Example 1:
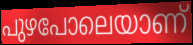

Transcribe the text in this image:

പുഴപോലെയാണ്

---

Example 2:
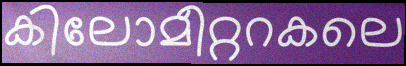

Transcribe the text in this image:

കിലോമീറ്ററകലെ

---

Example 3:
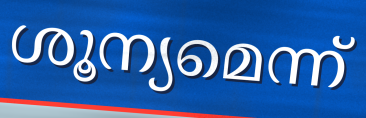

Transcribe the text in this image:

ശൂന്യമെന്ന്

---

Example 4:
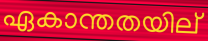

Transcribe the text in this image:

ഏകാന്തതയില്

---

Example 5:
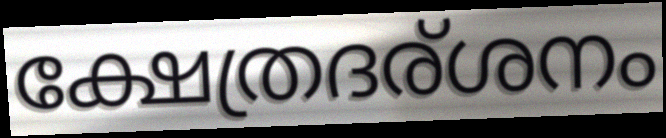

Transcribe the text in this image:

ക്ഷേത്രദര്ശനം